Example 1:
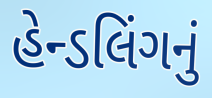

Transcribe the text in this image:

હેન્ડલિંગનું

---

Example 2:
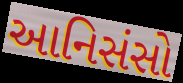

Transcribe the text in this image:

આનિસંસો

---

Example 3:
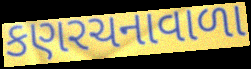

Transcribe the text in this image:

કણરચનાવાળા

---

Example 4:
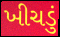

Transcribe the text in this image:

ખીચડું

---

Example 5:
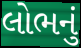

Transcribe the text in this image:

લોભનું